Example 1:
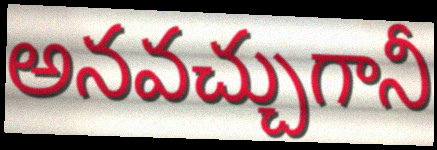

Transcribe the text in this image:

అనవచ్చుగానీ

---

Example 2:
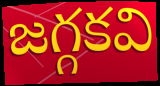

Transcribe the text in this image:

జగ్గకవి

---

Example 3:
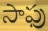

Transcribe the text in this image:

సాఫు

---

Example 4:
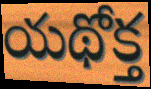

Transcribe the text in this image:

యథోక్త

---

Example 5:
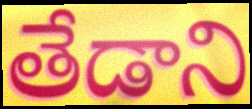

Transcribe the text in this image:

తేడాని